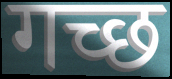
गच्छ